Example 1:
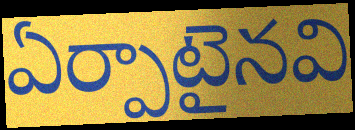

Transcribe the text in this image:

ఏర్పాటైనవి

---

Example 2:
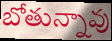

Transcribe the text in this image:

బోతున్నావు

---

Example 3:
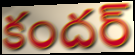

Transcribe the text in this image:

కందర్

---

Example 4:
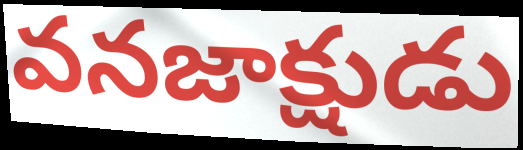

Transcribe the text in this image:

వనజాక్షుడు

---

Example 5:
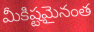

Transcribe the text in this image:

మీకిష్టమైనంత